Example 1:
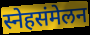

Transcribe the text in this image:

स्नेहसंमेलन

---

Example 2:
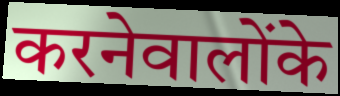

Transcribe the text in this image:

करनेवालोंके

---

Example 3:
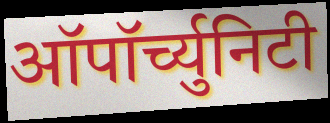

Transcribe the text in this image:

ऑपॉर्च्युनिटी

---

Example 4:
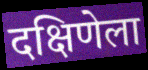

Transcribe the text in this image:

दक्षिणेला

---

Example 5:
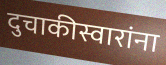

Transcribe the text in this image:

दुचाकीस्वारांना